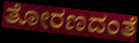
ತೋರಣದಂತೆ